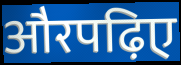
औरपढ़िए